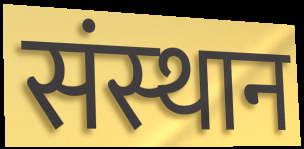
संस्‍थान